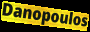
Danopoulos